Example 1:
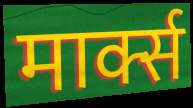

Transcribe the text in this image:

मार्क्स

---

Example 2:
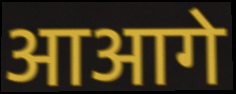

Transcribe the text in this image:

आआगे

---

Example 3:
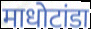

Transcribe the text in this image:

माधोटांडा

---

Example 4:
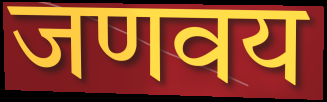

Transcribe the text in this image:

जणवय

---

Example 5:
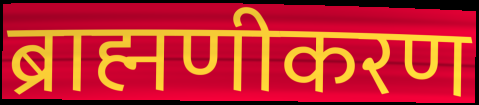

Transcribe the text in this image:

ब्राह्मणीकरण